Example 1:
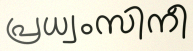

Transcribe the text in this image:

പ്രധ്വംസിനീ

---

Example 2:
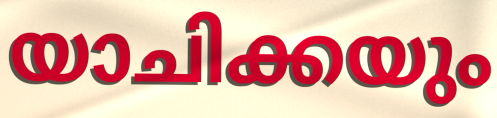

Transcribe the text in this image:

യാചിക്കയും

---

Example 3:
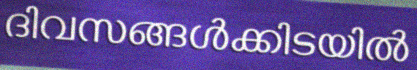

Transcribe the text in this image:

ദിവസങ്ങൾക്കിടയിൽ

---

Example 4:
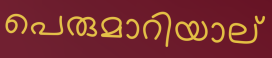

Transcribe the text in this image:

പെരുമാറിയാല്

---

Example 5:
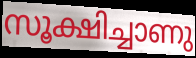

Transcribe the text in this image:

സൂക്ഷിച്ചാണു